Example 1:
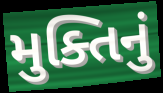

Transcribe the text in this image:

મુક્તિનું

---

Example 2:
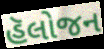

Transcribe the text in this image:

હૅલોજન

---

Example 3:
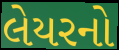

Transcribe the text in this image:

લેયરનો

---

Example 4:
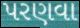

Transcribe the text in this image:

પરણવા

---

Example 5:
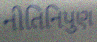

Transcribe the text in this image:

નીતિનિપુણ